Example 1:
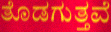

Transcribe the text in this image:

ತೊಡಗುತ್ತವೆ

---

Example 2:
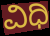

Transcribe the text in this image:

ವಿಧಿ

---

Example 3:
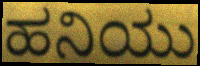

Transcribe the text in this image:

ಹನಿಯು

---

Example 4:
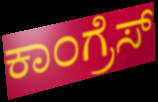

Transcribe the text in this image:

ಕಾಂಗ್ರೆಸ್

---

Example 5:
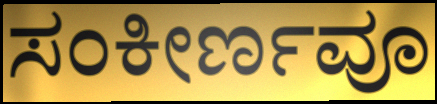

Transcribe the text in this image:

ಸಂಕೀರ್ಣವೂ